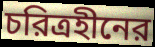
চরিত্রহীনের